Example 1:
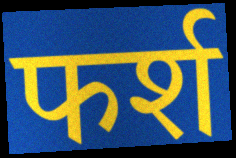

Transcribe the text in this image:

फर्श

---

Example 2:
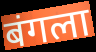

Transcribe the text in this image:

बंगला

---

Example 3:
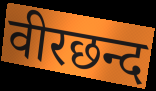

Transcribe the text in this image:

वीरछन्द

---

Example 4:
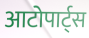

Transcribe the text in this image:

आटोपार्ट्स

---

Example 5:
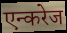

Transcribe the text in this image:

एन्करेज